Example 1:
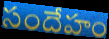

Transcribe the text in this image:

సందేహం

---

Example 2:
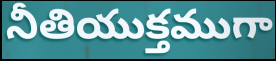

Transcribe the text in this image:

నీతియుక్తముగా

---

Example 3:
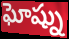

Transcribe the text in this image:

ఘోష్ను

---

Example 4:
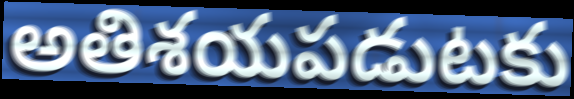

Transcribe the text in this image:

అతిశయపడుటకు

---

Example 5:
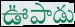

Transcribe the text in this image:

ఊపాడు